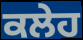
ਕਲੇਹ